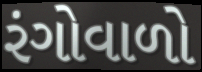
રંગોવાળો